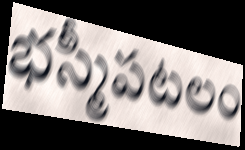
భస్మీపటలం